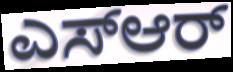
ಎಸ್ಆರ್